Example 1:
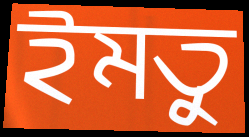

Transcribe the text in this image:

ইমতু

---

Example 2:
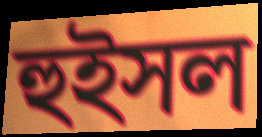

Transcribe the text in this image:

হুইসল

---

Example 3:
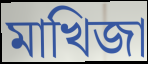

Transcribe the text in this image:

মাখিজা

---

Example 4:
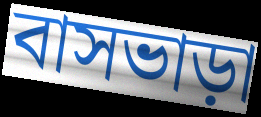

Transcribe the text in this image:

বাসভাড়া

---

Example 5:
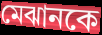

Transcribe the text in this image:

মেঝানকে